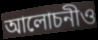
আলোচনীও